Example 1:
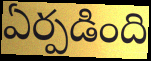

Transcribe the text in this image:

ఏర్పడింది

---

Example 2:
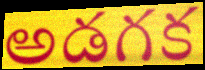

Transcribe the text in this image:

అడగక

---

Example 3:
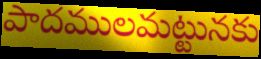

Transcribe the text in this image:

పాదములమట్టునకు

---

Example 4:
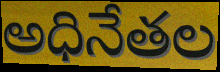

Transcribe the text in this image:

అధినేతల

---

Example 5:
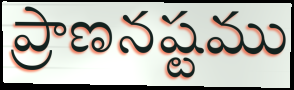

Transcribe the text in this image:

ప్రాణనష్టము